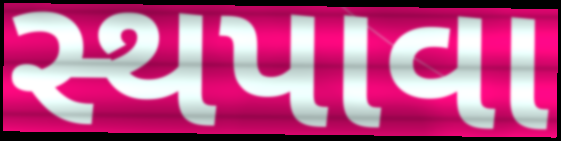
સ્થપાવા